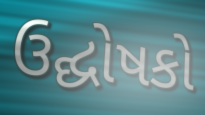
ઉદ્ઘોષકો